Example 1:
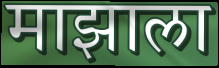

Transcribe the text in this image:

माझाला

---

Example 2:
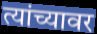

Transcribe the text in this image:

त्यांच्यावर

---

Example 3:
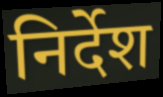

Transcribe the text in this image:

निर्देश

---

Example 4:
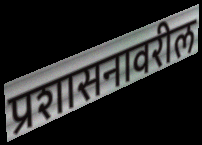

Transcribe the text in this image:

प्रशासनावरील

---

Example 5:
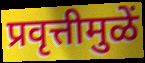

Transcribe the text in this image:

प्रवृत्तीमुळें